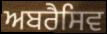
ਅਬਰੈਸਿਵ